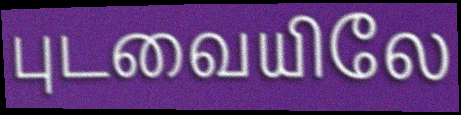
புடவையிலே